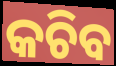
କଚିବ